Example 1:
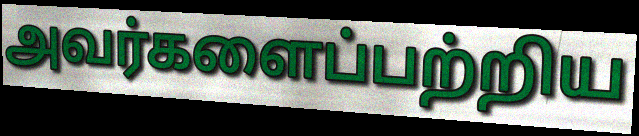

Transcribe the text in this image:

அவர்களைப்பற்றிய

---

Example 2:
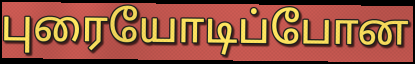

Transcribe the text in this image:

புரையோடிப்போன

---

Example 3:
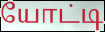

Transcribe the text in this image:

யோட்டி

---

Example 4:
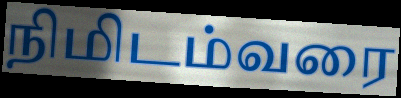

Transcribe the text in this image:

நிமிடம்வரை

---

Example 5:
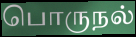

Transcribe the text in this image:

பொருநல்